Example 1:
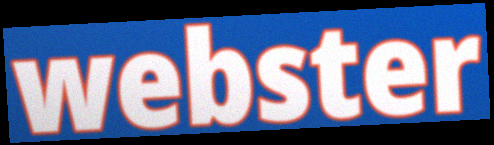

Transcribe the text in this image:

webster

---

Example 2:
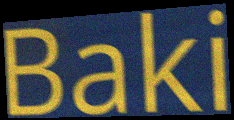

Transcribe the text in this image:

Baki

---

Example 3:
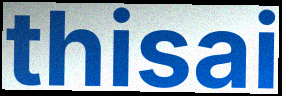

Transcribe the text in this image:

thisai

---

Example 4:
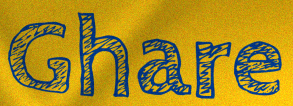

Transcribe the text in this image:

Ghare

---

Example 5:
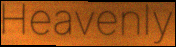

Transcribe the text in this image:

Heavenly